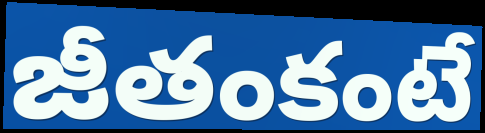
జీతంకంటే